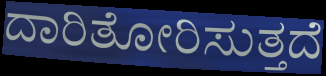
ದಾರಿತೋರಿಸುತ್ತದೆ